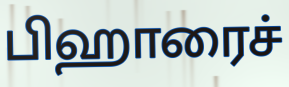
பிஹாரைச்